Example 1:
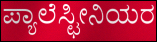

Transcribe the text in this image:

ಪ್ಯಾಲೆಸ್ಟೀನಿಯರ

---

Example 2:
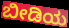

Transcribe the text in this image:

ಬೀಡಿಯ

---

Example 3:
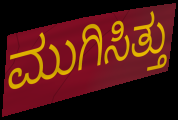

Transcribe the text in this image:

ಮುಗಿಸಿತ್ತು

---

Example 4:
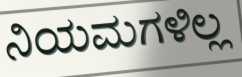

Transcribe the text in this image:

ನಿಯಮಗಳಿಲ್ಲ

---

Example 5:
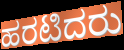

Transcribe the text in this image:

ಹರಟಿದರು